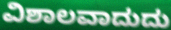
ವಿಶಾಲವಾದುದು